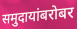
समुदायांबरोबर